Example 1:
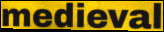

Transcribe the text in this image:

medieval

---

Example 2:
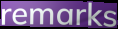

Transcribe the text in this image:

remarks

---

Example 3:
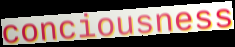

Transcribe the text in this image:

conciousness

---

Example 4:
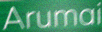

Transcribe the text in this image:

Arumai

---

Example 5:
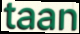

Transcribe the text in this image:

taan